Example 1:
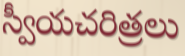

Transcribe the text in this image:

స్వీయచరిత్రలు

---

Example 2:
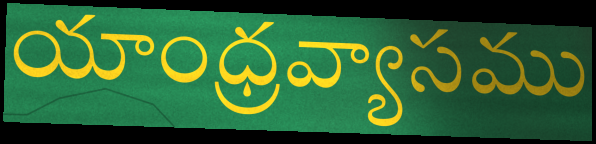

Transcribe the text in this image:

యాంధ్రవ్యాసము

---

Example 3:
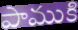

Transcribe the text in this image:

పాముకి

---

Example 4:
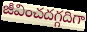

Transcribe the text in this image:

జీవించదగ్గదిగా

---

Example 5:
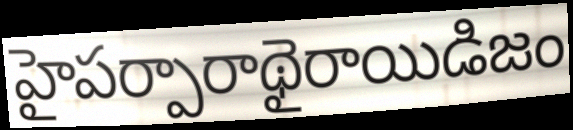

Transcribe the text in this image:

హైపర్పారాథైరాయిడిజం